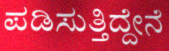
ಪಡಿಸುತ್ತಿದ್ದೇನೆ